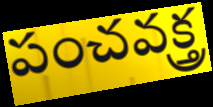
పంచవక్త్ర